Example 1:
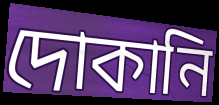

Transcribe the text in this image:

দোকানি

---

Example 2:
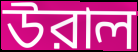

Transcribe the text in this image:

উরাল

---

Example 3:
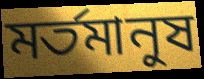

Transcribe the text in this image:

মর্তমানুষ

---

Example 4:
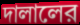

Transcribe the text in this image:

দালালের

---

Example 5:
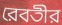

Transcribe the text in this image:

রেবতীর